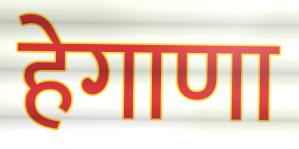
हेगाणा